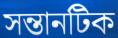
সন্তানটিক